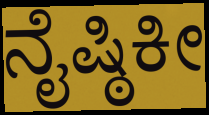
ನೈಷ್ಠಿಕೀ